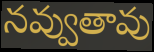
నవ్వుతావు